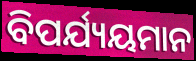
ବିପର୍ଯ୍ୟୟମାନ